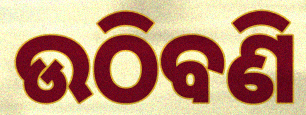
ଉଠିବଣି